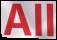
AII